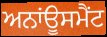
ਅਨਾਂਊਸਮੈਂਟ